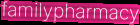
familypharmacy